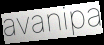
avanipa